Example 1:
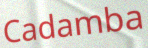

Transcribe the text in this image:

Cadamba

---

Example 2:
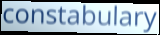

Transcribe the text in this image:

constabulary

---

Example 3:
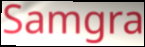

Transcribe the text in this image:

Samgra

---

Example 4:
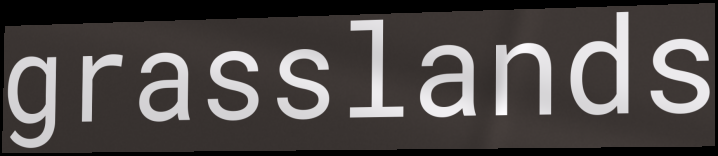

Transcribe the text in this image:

grasslands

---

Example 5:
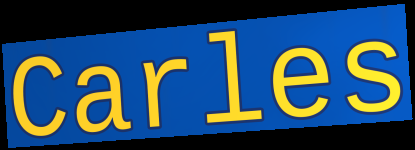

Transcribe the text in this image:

Carles